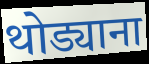
थोड्याना